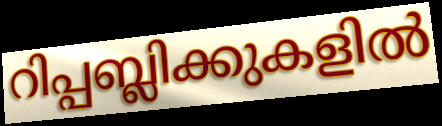
റിപ്പബ്ലിക്കുകളിൽ